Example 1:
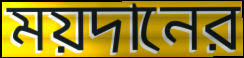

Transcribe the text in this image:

ময়দানের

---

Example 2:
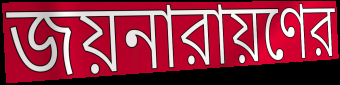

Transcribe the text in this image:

জয়নারায়ণের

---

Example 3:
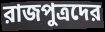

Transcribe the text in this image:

রাজপুত্রদের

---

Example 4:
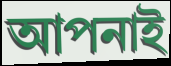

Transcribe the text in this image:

আপনাই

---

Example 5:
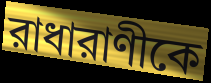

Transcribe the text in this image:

রাধারাণীকে